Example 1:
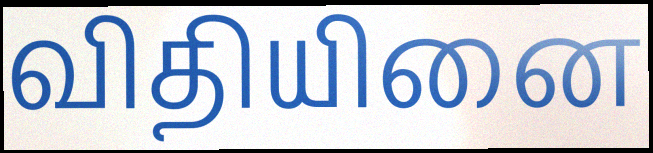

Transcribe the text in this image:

விதியினை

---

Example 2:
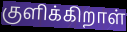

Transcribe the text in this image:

குளிக்கிறாள்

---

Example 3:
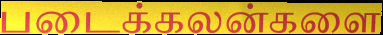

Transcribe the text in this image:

படைக்கலன்களை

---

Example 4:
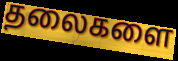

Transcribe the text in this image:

தலைகளை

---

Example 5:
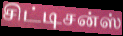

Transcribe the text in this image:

சிட்டிசன்ஸ்